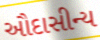
ઔદાસીન્ય